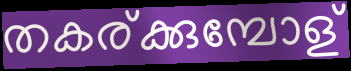
തകര്ക്കുമ്പോള്